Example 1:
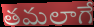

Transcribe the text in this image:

తమలాగే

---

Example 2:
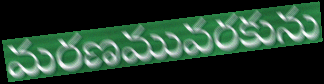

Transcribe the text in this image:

మరణమువరకును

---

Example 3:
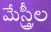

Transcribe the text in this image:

మేస్త్రీల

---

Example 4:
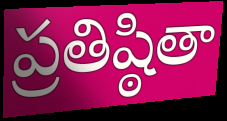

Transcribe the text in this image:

ప్రతిష్ఠితా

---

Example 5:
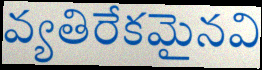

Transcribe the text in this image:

వ్యతిరేకమైనవి